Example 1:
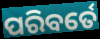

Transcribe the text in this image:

ପରିବର୍ତେ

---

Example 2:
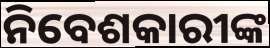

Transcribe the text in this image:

ନିବେଶକାରୀଙ୍କ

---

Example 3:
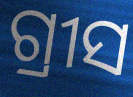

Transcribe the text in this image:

ଗ୍ରୀସ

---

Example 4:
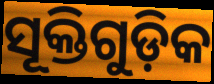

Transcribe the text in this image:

ସୂକ୍ତିଗୁଡ଼ିକ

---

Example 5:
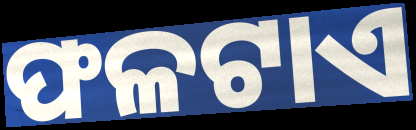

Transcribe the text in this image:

ଫଳଟାଏ